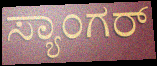
ಸ್ಯಾಂಗರ್